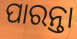
ପାରନ୍ତା